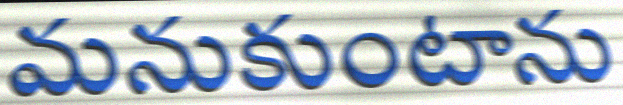
మనుకుంటాను